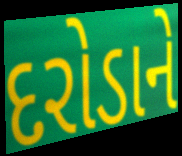
દરોડાને